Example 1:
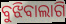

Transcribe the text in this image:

ବୁଝିବାଲାଗି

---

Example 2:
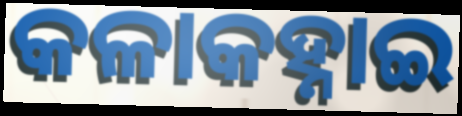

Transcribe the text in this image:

କଳାକହ୍ନାଇ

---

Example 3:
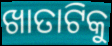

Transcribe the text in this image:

ଖାତାଟିକୁ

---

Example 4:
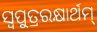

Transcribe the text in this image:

ସ୍ଵପୁତ୍ରରକ୍ଷାର୍ଥମ୍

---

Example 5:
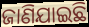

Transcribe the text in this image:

ଜାଣିଯାଇଛି